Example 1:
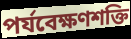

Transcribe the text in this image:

পর্যবেক্ষণশক্তি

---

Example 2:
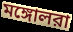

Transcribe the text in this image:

মঙ্গোলরা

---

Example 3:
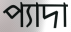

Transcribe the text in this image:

প্যাদা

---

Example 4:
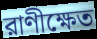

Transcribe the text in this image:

রাণীক্ষেত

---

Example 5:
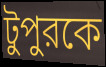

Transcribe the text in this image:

টুপুরকে